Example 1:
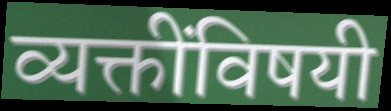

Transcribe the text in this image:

व्यक्तींविषयी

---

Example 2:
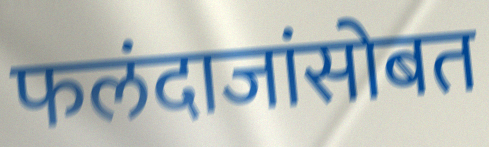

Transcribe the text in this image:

फलंदाजांसोबत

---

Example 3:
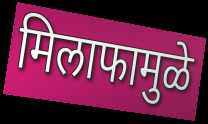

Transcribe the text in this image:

मिलाफामुळे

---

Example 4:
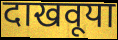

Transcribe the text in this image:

दाखवूया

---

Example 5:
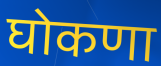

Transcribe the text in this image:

घोकणा